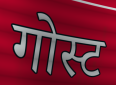
गोस्ट